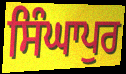
ਸਿੰਘਾਪੁਰ